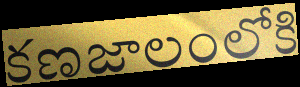
కణజాలంలోకి